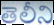
తెలీని